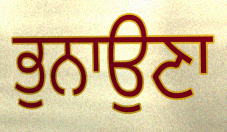
ਭੁਨਾਉਣਾ